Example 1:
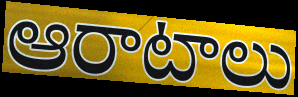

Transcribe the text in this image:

ఆరాటాలు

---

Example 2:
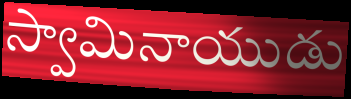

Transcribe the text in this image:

స్వామినాయుడు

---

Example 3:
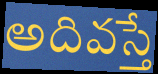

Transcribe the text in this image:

అదివస్తే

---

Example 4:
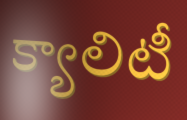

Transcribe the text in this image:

క్యాలిటీ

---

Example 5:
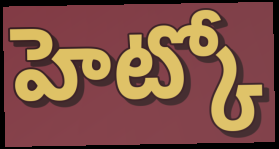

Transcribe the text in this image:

హెట్కో